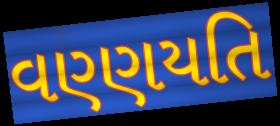
વણ્ણયતિ